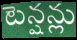
టెన్షన్లు